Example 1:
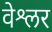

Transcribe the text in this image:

वेश्लर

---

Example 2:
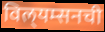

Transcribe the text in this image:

विल्यम्सनची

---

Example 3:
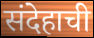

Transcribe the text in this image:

संदेहाची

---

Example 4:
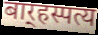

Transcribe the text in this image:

बार्हस्पत्य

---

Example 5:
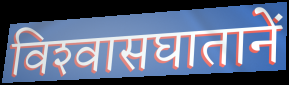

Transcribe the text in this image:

विश्वासघातानें